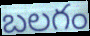
బలగం